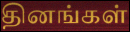
தினங்கள்